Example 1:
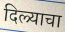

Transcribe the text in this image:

दिल्याचा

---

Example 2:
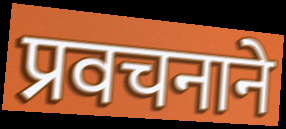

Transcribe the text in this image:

प्रवचनाने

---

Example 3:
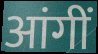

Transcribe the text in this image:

आंगीं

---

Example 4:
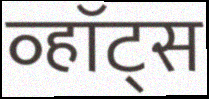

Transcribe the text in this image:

व्हॉट्स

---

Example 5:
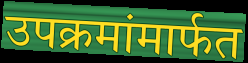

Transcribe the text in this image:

उपक्रमांमार्फत